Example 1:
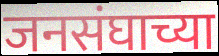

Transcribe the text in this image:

जनसंघाच्या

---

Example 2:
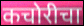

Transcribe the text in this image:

कचोरीचा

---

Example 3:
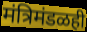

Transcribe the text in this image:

मंत्रिमंडळही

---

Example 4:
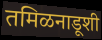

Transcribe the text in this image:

तमिळनाडूशी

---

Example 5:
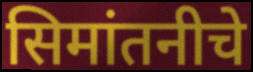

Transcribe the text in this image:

सिमांतनीचे